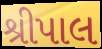
શ્રીપાલ